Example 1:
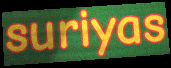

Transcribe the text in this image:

suriyas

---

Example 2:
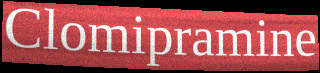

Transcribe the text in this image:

Clomipramine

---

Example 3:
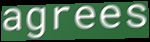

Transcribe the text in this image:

agrees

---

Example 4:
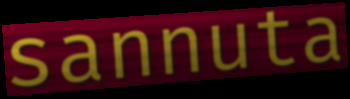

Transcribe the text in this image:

sannuta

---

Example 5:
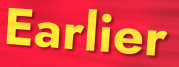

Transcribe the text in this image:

Earlier